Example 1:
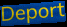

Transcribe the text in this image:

Deport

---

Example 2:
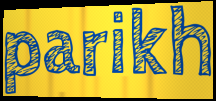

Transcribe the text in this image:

parikh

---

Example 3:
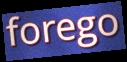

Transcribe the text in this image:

forego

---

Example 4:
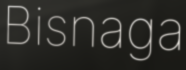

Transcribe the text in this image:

Bisnaga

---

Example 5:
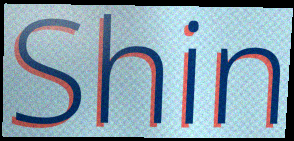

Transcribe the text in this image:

Shin